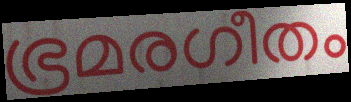
ഭ്രമരഗീതം